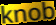
knob